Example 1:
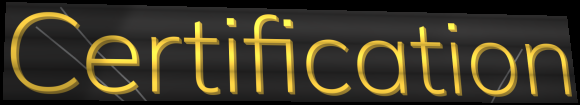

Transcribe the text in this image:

Certification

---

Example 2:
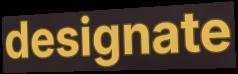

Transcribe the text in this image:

designate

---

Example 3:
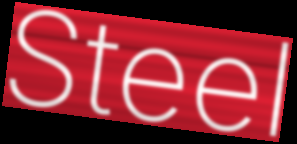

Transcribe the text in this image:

Steel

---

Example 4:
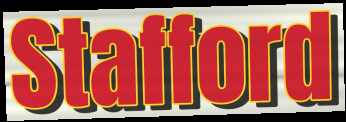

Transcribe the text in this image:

Stafford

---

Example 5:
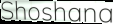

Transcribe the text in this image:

Shoshana